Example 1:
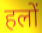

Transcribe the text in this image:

हलों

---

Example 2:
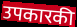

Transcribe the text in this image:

उपकारकी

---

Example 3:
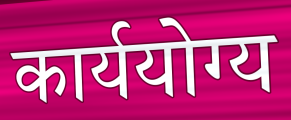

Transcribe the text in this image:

कार्ययोग्य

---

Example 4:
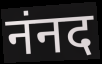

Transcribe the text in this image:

नंनद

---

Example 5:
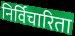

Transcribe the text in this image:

निर्विचारिता